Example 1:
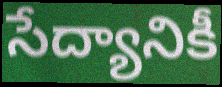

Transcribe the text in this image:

సేద్యానికీ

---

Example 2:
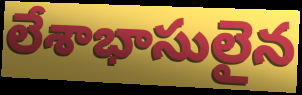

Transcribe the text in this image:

లేశాభాసులైన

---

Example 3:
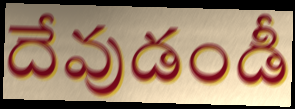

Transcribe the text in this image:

దేవుడండీ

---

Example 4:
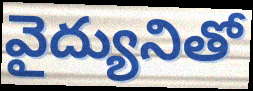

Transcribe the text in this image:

వైద్యునితో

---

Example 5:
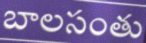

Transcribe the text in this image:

బాలసంతు